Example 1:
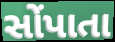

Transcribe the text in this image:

સોંપાતા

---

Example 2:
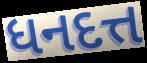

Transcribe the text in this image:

ધનદત્ત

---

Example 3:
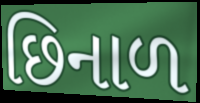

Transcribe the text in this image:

છિનાળ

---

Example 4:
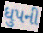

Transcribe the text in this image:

ધુપની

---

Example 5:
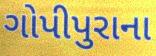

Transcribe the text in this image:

ગોપીપુરાના